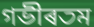
গভীৰতম